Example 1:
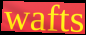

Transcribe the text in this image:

wafts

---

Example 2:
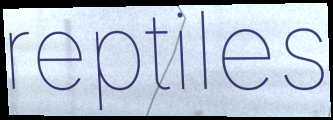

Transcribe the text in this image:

reptiles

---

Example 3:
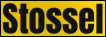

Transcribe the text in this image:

Stossel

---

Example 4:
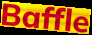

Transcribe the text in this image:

Baffle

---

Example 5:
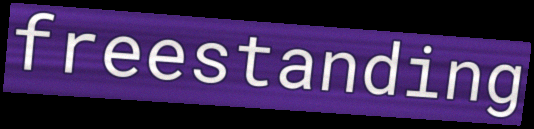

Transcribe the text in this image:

freestanding